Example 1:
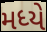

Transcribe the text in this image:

મધ્યે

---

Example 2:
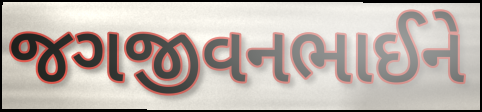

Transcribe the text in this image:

જગજીવનભાઈને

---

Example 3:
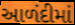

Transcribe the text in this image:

આળંદીમાં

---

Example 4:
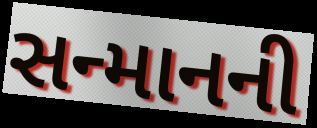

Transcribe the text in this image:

સન્માનની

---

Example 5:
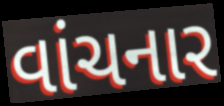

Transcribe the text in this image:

વાંચનાર